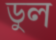
ডুল